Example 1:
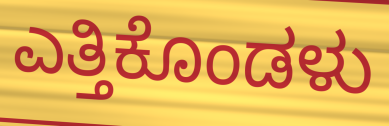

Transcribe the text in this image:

ಎತ್ತಿಕೊಂಡಳು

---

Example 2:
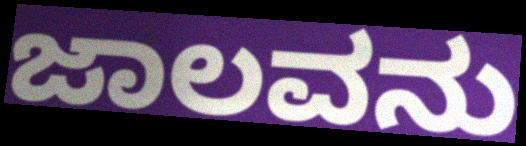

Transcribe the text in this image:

ಜಾಲವನು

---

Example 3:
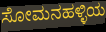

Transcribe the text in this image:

ಸೋಮನಹಳ್ಳಿಯ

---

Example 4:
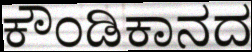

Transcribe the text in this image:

ಕೌಂಡಿಕಾನದ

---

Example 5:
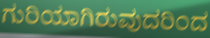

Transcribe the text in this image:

ಗುರಿಯಾಗಿರುವುದರಿಂದ